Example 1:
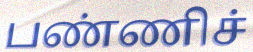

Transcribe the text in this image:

பண்ணிச்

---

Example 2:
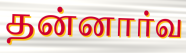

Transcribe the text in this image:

தன்னார்வ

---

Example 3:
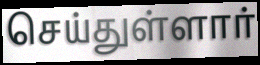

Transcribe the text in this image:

செய்துள்ளார்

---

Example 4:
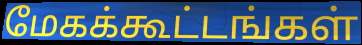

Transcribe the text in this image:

மேகக்கூட்டங்கள்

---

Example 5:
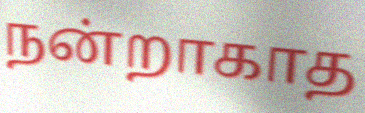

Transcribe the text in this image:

நன்றாகாத